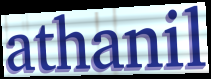
athanil